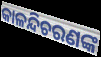
କାଳନ୍ଦିଚରଣଙ୍କ